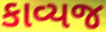
કાવ્યજ